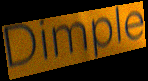
Dimple